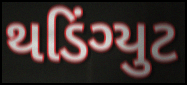
થડિંગ્યુટ